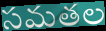
సమతల